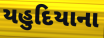
યહુદિયાના